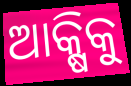
ଆକ୍ଷିକୁ